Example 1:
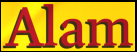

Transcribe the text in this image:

Alam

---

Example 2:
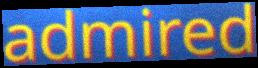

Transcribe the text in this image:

admired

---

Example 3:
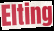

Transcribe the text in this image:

Elting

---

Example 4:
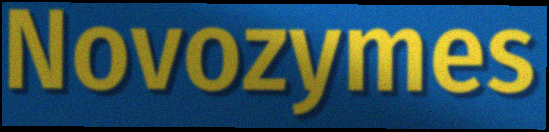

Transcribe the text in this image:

Novozymes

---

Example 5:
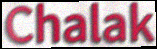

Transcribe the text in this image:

Chalak